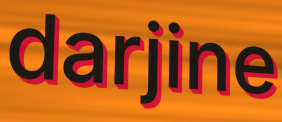
darjine